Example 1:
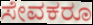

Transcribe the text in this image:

ಸೇವಕರೂ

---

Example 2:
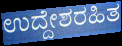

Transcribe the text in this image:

ಉದ್ದೇಶರಹಿತ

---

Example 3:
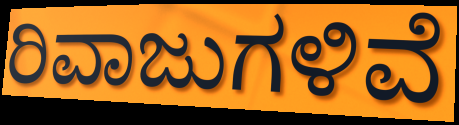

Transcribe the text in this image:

ರಿವಾಜುಗಳಿವೆ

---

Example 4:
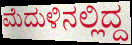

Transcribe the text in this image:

ಮೆದುಳಿನಲ್ಲಿದ್ದ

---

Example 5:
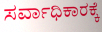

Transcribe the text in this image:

ಸರ್ವಾಧಿಕಾರಕ್ಕೆ